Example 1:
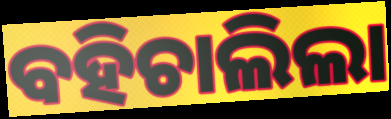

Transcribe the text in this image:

ବହିଚାଲିଲା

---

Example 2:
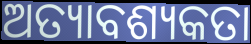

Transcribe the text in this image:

ଅତ୍ୟାବଶ୍ୟକତା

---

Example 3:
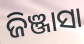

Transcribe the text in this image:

ଜିଞ୍ଜାସା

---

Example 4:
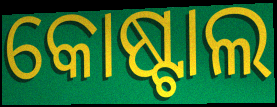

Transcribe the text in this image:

କୋଷ୍ଟାଲ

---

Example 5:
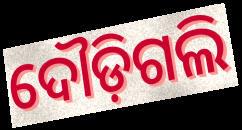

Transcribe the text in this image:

ଦୌଡ଼ିଗଲି